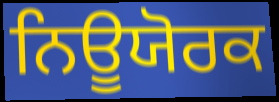
ਨਿਊਯੋਰਕ